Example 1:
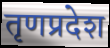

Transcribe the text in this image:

तृणप्रदेश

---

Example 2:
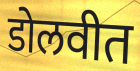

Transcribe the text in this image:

डोलवीत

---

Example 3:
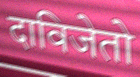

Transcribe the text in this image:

दाविजेतो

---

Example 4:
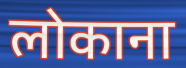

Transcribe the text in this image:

लोकाना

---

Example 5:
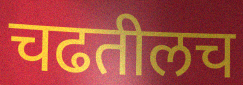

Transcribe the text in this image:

चढतीलच